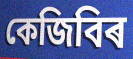
কেজিবিৰ